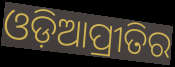
ଓଡ଼ିଆପ୍ରୀତିର